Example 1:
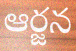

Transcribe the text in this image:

ఆర్జన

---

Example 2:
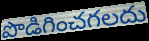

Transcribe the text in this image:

పొడిగించగలదు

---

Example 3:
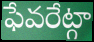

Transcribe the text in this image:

ఫేవరేట్గా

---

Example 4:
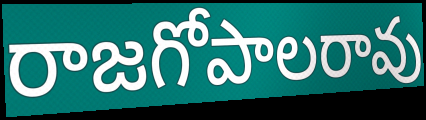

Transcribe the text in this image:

రాజగోపాలరావు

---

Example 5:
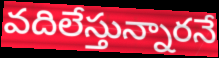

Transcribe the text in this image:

వదిలేస్తున్నారనే